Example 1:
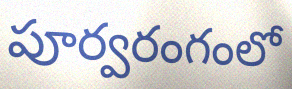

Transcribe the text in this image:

పూర్వరంగంలో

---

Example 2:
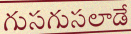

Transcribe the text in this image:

గుసగుసలాడే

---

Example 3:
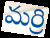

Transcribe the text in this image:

మర్రి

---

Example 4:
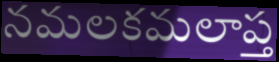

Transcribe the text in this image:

నమలకమలాప్త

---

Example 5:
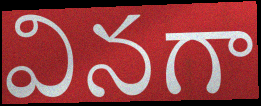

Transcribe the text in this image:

వినగా